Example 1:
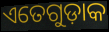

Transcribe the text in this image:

ଏତେଗୁଡ଼ାକ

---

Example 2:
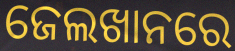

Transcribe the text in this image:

ଜେଲଖାନରେ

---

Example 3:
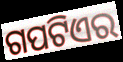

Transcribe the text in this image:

ଗପଟିଏର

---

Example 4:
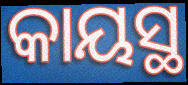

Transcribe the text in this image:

କାୟସ୍ଥ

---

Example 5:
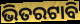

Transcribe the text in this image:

ଭିତରଟାବି